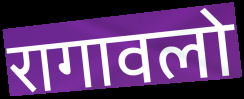
रागावलो